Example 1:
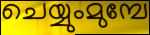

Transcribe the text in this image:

ചെയ്യുംമുമ്പേ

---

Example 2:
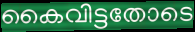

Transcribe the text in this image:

കൈവിട്ടതോടെ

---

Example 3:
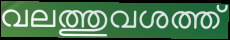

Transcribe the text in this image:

വലത്തുവശത്ത്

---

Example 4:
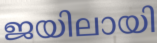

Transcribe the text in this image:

ജയിലായി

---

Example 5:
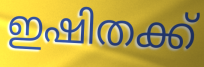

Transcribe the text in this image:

ഇഷിതക്ക്